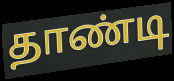
தாண்டி